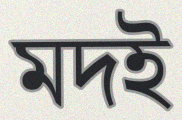
মদই